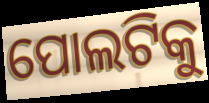
ପୋଲଟିକୁ